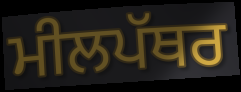
ਮੀਲਪੱਥਰ